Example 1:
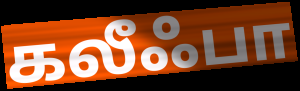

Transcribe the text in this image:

கலீஃபா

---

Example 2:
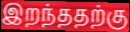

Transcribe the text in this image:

இறந்ததற்கு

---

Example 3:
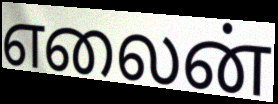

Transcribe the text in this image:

எலைன்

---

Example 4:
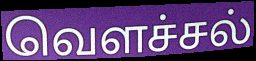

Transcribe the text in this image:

வெளச்சல்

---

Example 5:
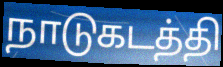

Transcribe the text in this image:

நாடுகடத்தி